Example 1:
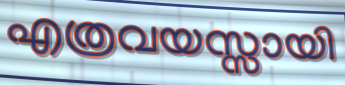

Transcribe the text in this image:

എത്രവയസ്സായി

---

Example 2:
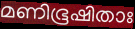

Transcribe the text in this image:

മണിഭൂഷിതാഃ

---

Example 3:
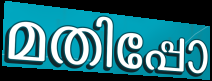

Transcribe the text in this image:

മതിപ്പോ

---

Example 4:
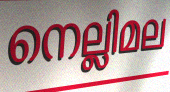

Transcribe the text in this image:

നെല്ലിമല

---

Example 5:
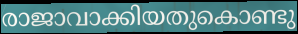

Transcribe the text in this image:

രാജാവാക്കിയതുകൊണ്ടു